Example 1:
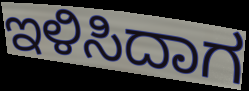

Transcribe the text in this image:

ಇಳಿಸಿದಾಗ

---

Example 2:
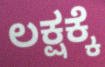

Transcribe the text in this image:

ಲಕ್ಷಕ್ಕೆ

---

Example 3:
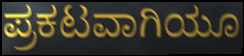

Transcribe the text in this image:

ಪ್ರಕಟವಾಗಿಯೂ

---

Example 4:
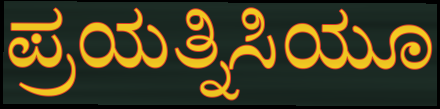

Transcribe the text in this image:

ಪ್ರಯತ್ನಿಸಿಯೂ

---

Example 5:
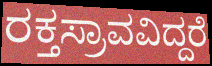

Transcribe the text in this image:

ರಕ್ತಸ್ರಾವವಿದ್ದರೆ